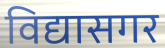
विद्यासगर